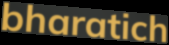
bharatich